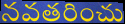
నవతరించు